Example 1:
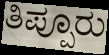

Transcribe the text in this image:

ತಿಪ್ಪೂರು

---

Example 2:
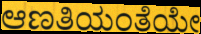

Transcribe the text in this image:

ಆಣತಿಯಂತೆಯೇ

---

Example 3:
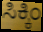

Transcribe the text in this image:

ಸಿಕ್ಕಿಂ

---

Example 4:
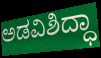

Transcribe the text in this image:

ಅಡವಿಶಿದ್ಧಾ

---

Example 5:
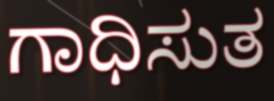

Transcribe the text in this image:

ಗಾಧಿಸುತ